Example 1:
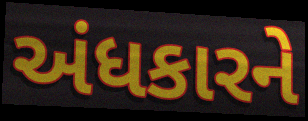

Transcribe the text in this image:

અંધકારને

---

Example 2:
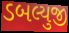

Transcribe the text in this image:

ડબલ્યુજી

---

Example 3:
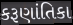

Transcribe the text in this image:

કરૂણાંતિકા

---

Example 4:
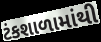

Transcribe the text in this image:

ટંકશાળામાંથી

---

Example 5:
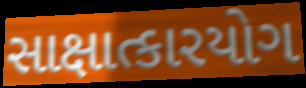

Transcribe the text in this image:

સાક્ષાત્કારયોગ